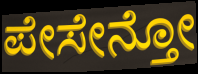
ಪೇಸೇನ್ತೋ